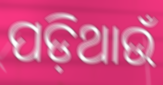
ପଡ଼ିଥାଉଁ